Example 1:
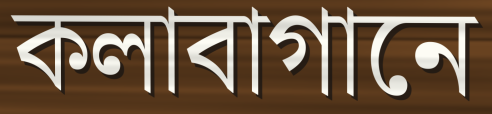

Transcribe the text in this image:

কলাবাগানে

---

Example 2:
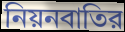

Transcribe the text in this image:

নিয়নবাতির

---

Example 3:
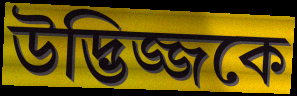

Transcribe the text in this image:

উদ্ভিজ্জকে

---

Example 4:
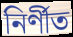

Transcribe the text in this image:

নির্ণীত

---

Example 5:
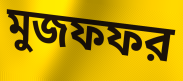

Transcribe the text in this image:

মুজফফর